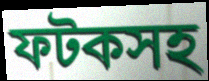
ফটকসহ